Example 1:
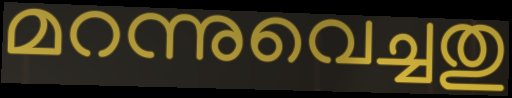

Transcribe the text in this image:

മറന്നുവെച്ചതു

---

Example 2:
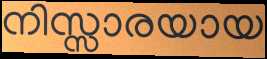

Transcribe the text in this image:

നിസ്സാരയായ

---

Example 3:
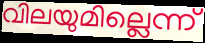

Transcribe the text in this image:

വിലയുമില്ലെന്ന്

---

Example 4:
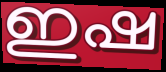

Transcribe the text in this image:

ഇഷ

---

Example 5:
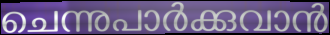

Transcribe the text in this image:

ചെന്നുപാർക്കുവാൻ